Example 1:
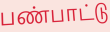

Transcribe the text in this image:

பண்பாட்டு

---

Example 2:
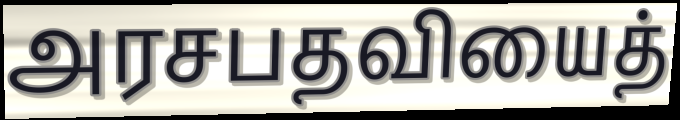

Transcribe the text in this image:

அரசபதவியைத்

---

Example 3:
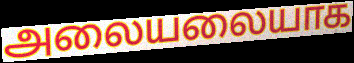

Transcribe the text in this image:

அலையலையாக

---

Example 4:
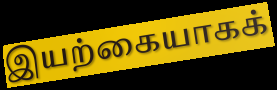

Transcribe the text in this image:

இயற்கையாகக்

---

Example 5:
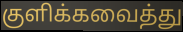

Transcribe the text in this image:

குளிக்கவைத்து